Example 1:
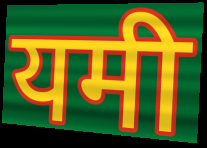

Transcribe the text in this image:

यमी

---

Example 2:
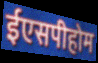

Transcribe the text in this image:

ईएसपीहोम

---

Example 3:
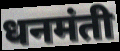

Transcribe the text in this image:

धनमंती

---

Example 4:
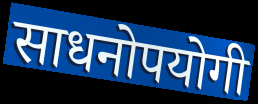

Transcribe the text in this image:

साधनोपयोगी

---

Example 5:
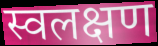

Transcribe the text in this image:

स्वलक्षण